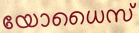
യോധൈസ്